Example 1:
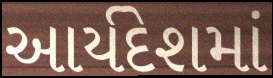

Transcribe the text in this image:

આર્યદેશમાં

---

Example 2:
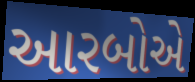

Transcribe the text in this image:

આરબોએ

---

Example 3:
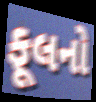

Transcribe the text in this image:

ફૂલનો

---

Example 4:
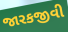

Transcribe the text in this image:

જારકજીવી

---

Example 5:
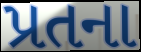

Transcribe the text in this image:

પ્રતના